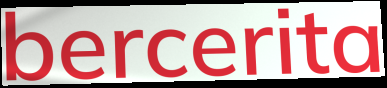
bercerita